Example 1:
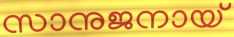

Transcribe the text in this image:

സാനുജനായ്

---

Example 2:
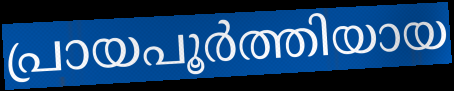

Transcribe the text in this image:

പ്രായപൂർത്തിയായ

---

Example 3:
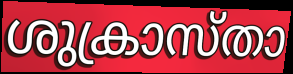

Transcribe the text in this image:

ശുക്രാസ്താ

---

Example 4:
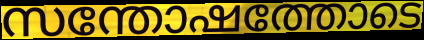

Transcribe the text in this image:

സന്തോഷത്തോടെ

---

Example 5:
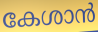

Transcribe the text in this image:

കേശാൻ